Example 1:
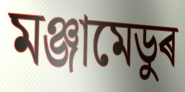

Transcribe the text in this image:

মঞ্জামেডুৰ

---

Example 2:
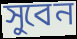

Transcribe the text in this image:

সুবেন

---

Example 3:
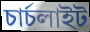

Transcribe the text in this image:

চাৰ্চলাইট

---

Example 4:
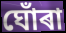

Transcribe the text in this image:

ঘোঁৰা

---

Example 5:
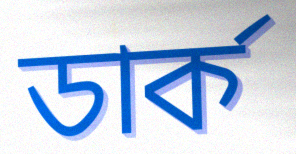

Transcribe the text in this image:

ডাৰ্ক